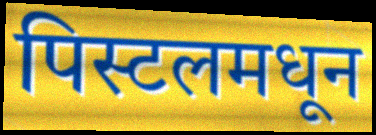
पिस्टलमधून